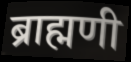
ब्राह्मणी